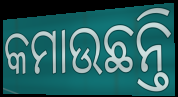
କମାଉଛନ୍ତି